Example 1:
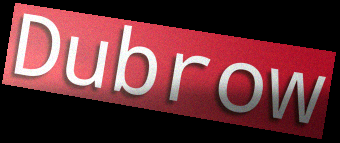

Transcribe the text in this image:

Dubrow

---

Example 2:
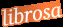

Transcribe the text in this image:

librosa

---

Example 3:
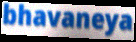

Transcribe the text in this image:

bhavaneya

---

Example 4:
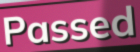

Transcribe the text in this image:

Passed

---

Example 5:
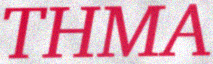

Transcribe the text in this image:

THMA